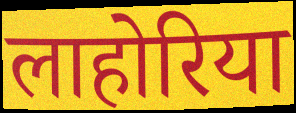
लाहोरिया